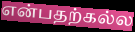
என்பதற்கல்ல